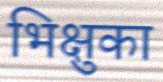
भिक्षुका